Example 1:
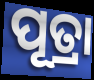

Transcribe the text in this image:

ପୂତ୍ରା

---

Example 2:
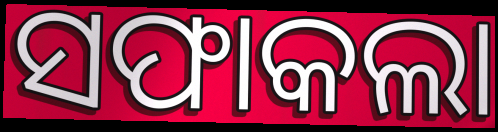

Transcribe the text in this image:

ସଫାକଲା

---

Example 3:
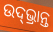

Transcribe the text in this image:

ଉଦ୍‌ଭ୍ରାନ୍ତ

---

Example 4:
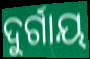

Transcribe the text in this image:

ଦୁର୍ଗାୟ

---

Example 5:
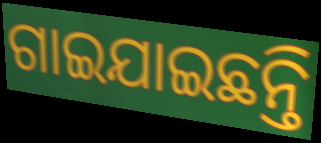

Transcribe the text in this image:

ଗାଇଯାଇଛନ୍ତି